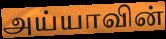
அய்யாவின்